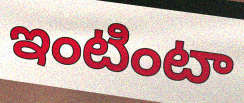
ఇంటింటా